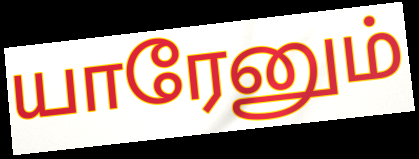
யாரேனும்